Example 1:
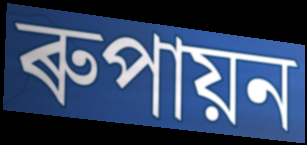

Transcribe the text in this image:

ৰুপায়ন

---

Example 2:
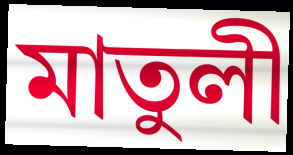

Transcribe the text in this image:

মাতুলী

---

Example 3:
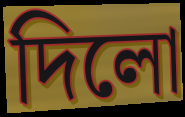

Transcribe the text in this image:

দিলো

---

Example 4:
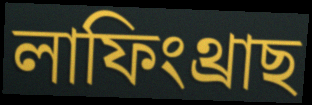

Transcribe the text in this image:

লাফিংথ্ৰাছ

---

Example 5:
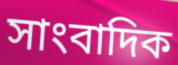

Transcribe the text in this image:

সাংবাদিক